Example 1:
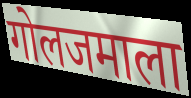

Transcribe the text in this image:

गोलजमाला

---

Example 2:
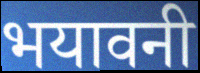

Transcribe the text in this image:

भयावनी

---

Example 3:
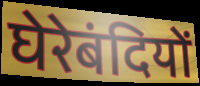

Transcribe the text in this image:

घेरेबंदियों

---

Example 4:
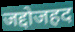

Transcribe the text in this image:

जद्दोजहद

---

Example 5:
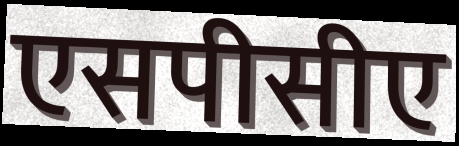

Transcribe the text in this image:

एसपीसीए